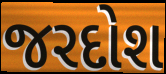
જરદોશ